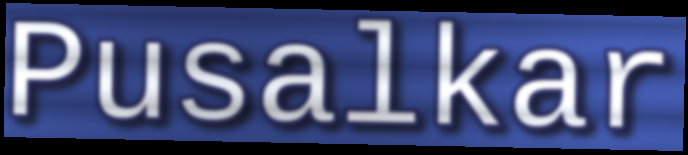
Pusalkar